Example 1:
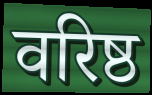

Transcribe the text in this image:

वरिष्ठ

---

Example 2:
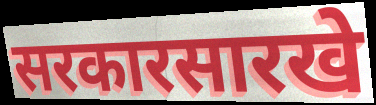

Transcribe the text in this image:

सरकारसारखे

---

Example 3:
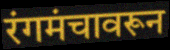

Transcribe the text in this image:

रंगमंचावरून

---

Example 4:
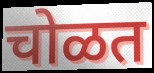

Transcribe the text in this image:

चोळत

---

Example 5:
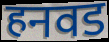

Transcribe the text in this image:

हनवड